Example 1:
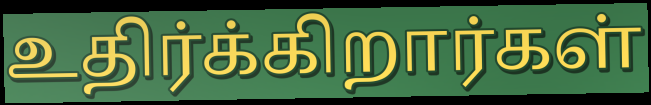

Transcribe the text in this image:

உதிர்க்கிறார்கள்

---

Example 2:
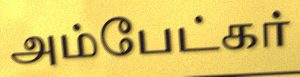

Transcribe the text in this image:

அம்பேட்கர்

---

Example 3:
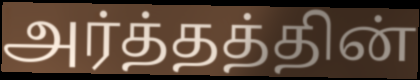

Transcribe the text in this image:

அர்த்தத்தின்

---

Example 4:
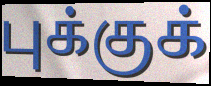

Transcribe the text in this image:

புக்குக்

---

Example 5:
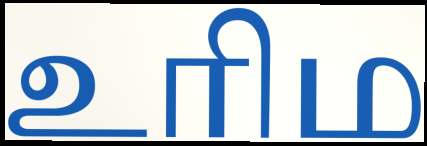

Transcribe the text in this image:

உரிம